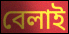
বেলাই